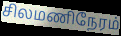
சிலமணிநேரம்